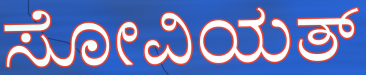
ಸೋವಿಯತ್